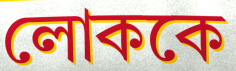
লোককে